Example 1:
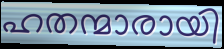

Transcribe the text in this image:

ഹതന്മാരായി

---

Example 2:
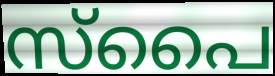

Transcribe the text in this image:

സ്പൈ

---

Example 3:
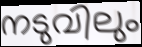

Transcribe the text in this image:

നടുവിലും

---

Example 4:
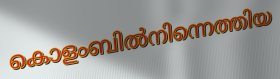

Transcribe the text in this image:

കൊളംബിൽനിന്നെത്തിയ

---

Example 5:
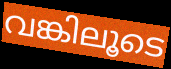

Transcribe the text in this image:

വങ്കിലൂടെ